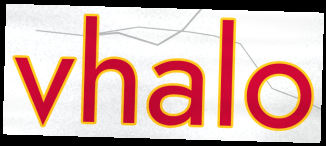
vhalo